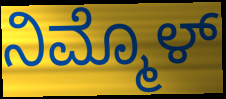
ನಿಮ್ಮೊಳ್